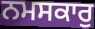
ਨਮਸਕਾਰੁ